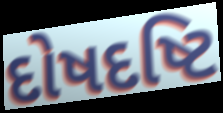
દોષદષ્ટિ